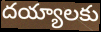
దయ్యాలకు